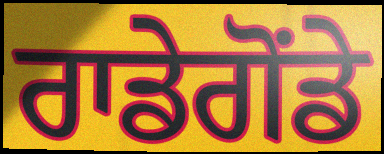
ਰਾਡੇਗੋਂਡੇ